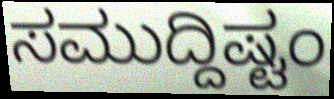
ಸಮುದ್ದಿಷ್ಟಂ